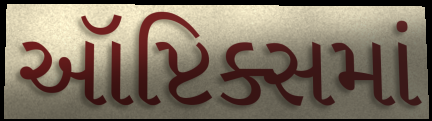
ઑપ્ટિક્સમાં